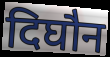
दिघौन